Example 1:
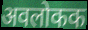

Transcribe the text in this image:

अवलोकक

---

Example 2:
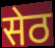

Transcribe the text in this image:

सेठ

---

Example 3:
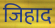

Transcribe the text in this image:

जिहाद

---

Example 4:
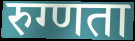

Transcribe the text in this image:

रुग्णता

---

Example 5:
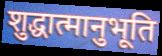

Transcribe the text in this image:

शुद्धात्मानुभूति